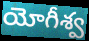
యోగీశ్వ